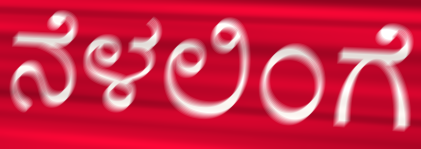
ನೆಳಲಿಂಗೆ